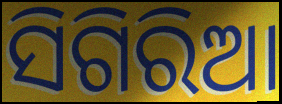
ସିଗିରିଆ